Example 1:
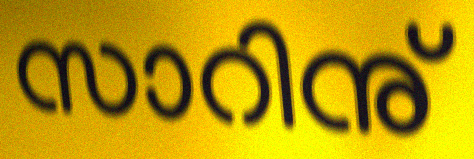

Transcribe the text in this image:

സാറിനു്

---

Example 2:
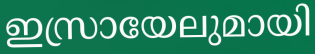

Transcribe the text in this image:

ഇസ്രായേലുമായി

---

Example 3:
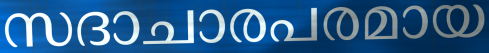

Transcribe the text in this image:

സദാചാരപരമായ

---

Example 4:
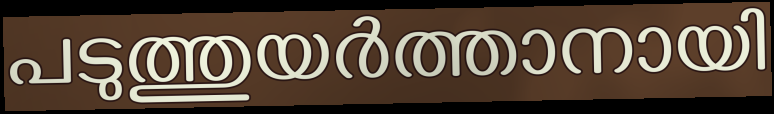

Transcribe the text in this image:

പടുത്തുയർത്താനായി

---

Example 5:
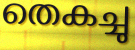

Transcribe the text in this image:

തെകച്ചു